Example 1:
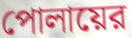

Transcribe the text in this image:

পোলায়ের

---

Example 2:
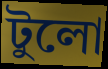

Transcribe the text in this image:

টুলো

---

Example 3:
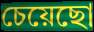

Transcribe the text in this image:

চেয়েছো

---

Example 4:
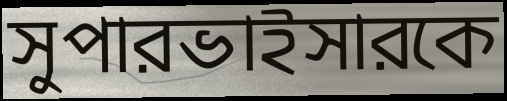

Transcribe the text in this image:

সুপারভাইসারকে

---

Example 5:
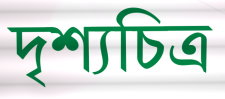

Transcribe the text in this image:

দৃশ্যচিত্র